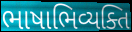
ભાષાભિવ્યક્તિ